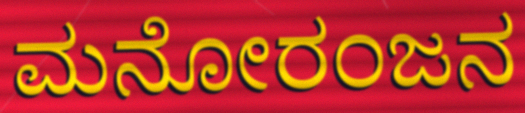
ಮನೋರಂಜನ